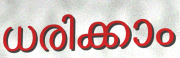
ധരിക്കാം